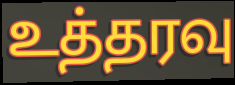
உத்தரவு